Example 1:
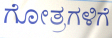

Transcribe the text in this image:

ಗೋತ್ರಗಳಿಗೆ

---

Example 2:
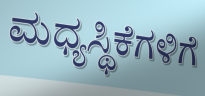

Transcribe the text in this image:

ಮಧ್ಯಸ್ಥಿಕೆಗಳಿಗೆ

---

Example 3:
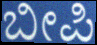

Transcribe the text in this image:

ಬೀಪಿ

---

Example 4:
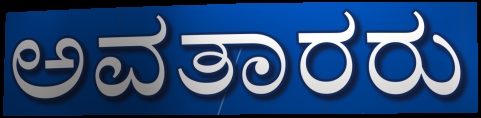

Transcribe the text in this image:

ಅವತಾರರು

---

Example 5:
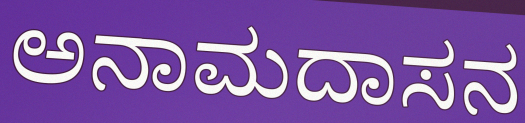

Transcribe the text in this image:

ಅನಾಮದಾಸನ